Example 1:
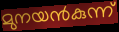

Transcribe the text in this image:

മുനയൻകുന്ന്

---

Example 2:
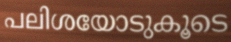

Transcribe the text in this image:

പലിശയോടുകൂടെ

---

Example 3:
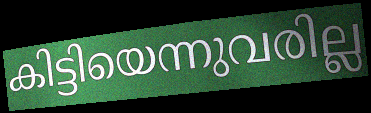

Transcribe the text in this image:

കിട്ടിയെന്നുവരില്ല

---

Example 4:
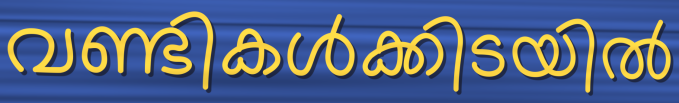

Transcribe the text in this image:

വണ്ടികൾക്കിടയിൽ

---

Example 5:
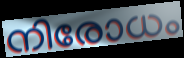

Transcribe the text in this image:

നിരോധം